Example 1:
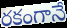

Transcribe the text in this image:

రకంగానే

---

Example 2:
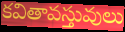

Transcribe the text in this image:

కవితావస్తువులు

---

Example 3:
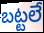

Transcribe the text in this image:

బట్టలే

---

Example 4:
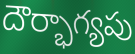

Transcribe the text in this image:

దౌర్భాగ్యపు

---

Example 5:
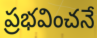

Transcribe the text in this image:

ప్రభవించనే